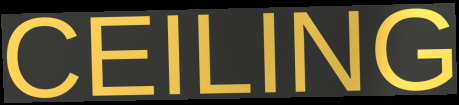
CEILING